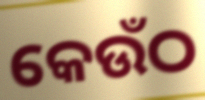
କେଉଁଠ